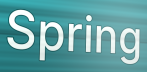
Spring